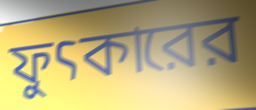
ফুৎকারের